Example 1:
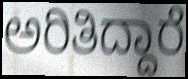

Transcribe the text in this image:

ಅರಿತಿದ್ದಾರೆ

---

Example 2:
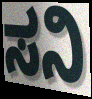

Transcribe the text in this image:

ಸನಿ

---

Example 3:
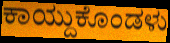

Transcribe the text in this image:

ಕಾಯ್ದುಕೊಂಡಳು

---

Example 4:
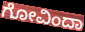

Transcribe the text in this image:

ಗೋವಿಂದಾ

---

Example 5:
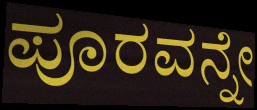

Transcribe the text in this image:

ಪೂರವನ್ನೇ